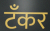
टँकर